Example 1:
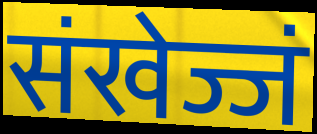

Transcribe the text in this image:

संखेज्जं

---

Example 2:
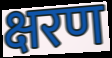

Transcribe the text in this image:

क्षरण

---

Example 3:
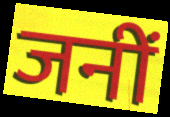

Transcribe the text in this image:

जनीं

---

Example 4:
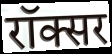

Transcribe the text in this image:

रॉक्सर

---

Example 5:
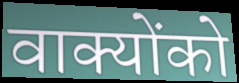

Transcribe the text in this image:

वाक्योंको